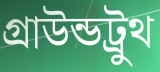
গ্রাউন্ডট্রুথ